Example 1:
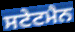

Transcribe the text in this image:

ਸਟੇਟਮੈਨ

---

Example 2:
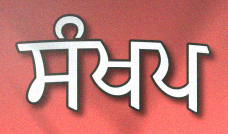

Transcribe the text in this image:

ਸੰਖਪ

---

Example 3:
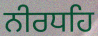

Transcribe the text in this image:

ਨੀਰਧਹਿ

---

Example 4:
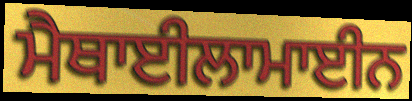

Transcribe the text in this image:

ਮੈਥਾਈਲਾਮਾਈਨ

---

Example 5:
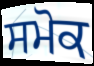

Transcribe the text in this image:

ਸਮੋਕ